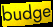
budge